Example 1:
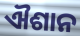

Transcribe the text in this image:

ଐଶାନ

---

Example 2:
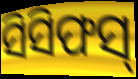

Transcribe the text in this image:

ସିସିଫସ୍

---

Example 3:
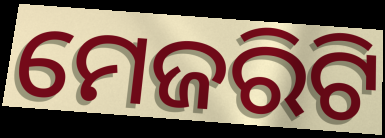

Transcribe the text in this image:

ମେଜରିଟି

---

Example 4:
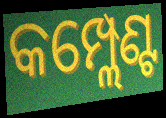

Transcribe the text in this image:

କମ୍ପ୍ଲେଣ୍ଟ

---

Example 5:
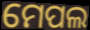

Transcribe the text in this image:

ମେପଲ